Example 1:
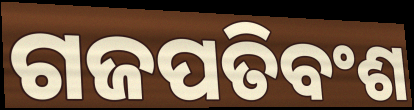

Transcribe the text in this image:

ଗଜପତିବଂଶ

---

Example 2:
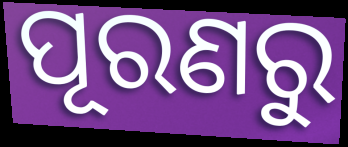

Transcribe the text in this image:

ପୂରଣରୁ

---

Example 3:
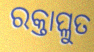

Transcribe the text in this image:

ରକ୍ତାପ୍ଳୁତ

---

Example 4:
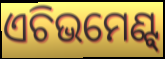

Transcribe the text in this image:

ଏଚିଭମେଣ୍ଟ୍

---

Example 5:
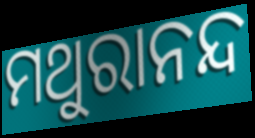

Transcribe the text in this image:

ମଥୁରାନନ୍ଦ